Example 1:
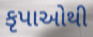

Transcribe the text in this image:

કૃપાઓથી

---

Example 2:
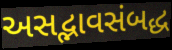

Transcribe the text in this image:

અસદ્ભાવસંબદ્ધ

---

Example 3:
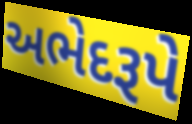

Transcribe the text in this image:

અભેદરૂપે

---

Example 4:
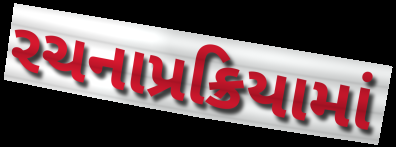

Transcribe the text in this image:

રચનાપ્રક્રિયામાં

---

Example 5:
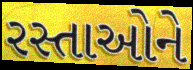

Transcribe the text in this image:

રસ્તાઓને